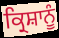
ਕ੍ਰਿਸ਼ਾਨੂੰ